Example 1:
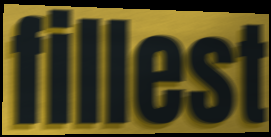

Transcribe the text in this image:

fillest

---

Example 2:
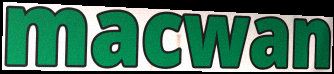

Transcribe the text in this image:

macwan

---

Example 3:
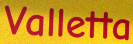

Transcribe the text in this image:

Valletta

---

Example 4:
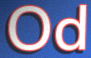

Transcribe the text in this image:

Od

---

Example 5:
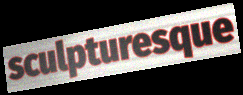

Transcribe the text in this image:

sculpturesque